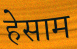
हेसाम